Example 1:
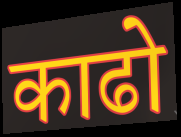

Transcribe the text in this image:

काढो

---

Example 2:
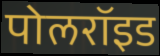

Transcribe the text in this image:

पोलरॉइड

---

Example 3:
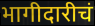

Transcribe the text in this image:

भागीदारीचं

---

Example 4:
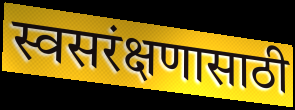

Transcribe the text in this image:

स्वसरंक्षणासाठी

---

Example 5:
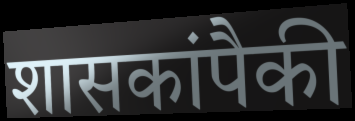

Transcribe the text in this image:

शासकांपैकी